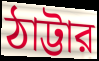
ঠাট্টার